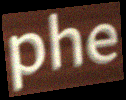
phe